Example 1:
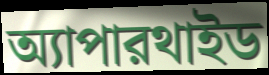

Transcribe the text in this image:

অ্যাপারথাইড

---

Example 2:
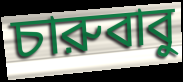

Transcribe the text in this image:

চারুবাবু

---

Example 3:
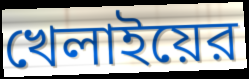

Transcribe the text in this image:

খেলাইয়ের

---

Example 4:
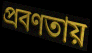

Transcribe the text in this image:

প্রবণতায়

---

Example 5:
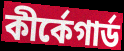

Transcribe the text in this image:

কীর্কেগার্ড